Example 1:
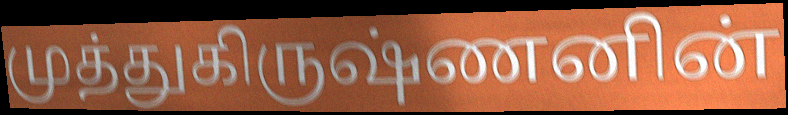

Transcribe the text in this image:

முத்துகிருஷ்ணனின்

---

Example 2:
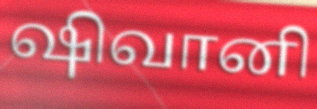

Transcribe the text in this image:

ஷிவானி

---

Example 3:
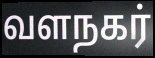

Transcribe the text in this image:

வளநகர்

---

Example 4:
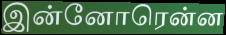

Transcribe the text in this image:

இன்னோரென்ன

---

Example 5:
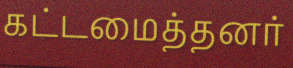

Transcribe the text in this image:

கட்டமைத்தனர்